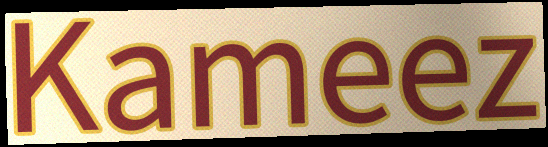
Kameez